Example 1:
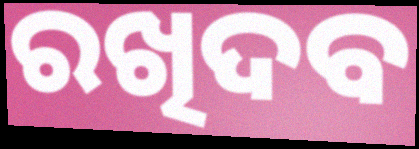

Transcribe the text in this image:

ରଖିଦବ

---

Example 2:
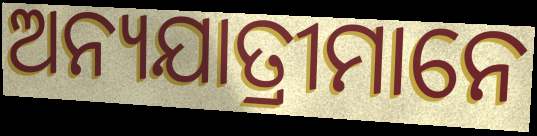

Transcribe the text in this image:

ଅନ୍ୟଯାତ୍ରୀମାନେ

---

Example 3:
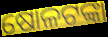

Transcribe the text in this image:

ଷୋଳଟଙ୍କା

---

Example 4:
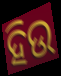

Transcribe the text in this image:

ହିଉ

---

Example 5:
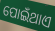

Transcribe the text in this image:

ପୋଇଁଥାଏ